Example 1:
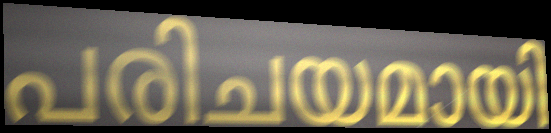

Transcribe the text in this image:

പരിചയമായി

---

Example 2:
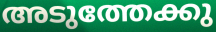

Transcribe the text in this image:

അടുത്തേക്കു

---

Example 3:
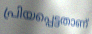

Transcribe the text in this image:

പ്രിയപ്പെട്ടതാണ്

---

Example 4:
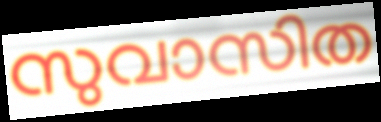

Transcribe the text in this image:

സുവാസിത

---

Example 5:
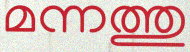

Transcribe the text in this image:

മന്നത്തു